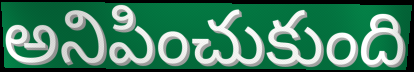
అనిపించుకుంది